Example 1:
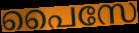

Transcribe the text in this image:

പൈസേ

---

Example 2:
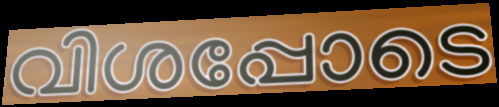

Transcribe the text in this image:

വിശപ്പോടെ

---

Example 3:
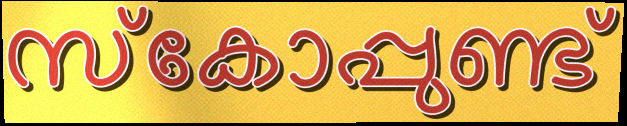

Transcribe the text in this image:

സ്കോപ്പുണ്ട്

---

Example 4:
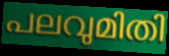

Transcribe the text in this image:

പലവുമിതി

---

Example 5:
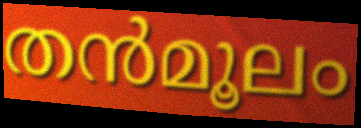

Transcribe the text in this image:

തൻമൂലം